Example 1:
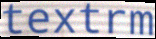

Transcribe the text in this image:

textrm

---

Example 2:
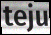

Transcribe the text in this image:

teju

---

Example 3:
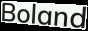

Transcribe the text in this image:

Boland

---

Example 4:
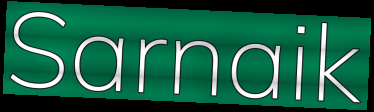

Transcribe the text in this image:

Sarnaik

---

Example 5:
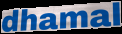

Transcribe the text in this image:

dhamal